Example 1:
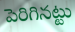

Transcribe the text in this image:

పెరిగినట్టు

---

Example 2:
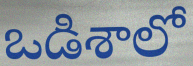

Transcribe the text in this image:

ఒడిశాలో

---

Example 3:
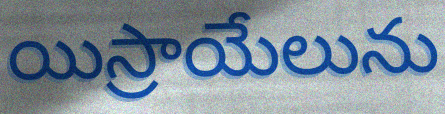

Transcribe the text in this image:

యిస్రాయేలును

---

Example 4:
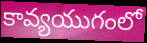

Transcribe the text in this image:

కావ్యయుగంలో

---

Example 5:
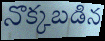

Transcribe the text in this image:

నొక్కబడిన